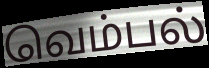
வெம்பல்